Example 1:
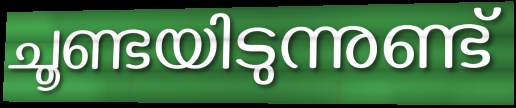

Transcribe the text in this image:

ചൂണ്ടയിടുന്നുണ്ട്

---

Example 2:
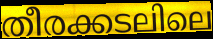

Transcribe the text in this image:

തീരക്കടലിലെ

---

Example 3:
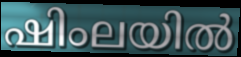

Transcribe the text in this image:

ഷിംലയിൽ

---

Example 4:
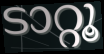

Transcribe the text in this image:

ടാറ്റൂ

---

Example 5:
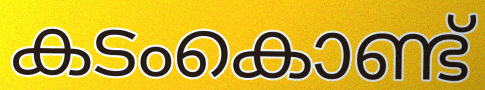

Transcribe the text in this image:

കടംകൊണ്ട്